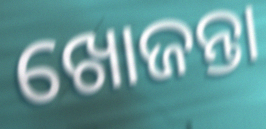
ଖୋଜନ୍ତା